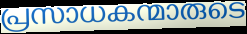
പ്രസാധകന്മാരുടെ